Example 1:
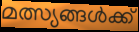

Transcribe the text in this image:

മത്സ്യങ്ങൾക്ക്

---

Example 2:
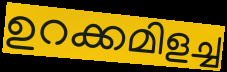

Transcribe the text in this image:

ഉറക്കമിളച്ച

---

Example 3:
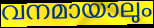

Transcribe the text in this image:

വനമായാലും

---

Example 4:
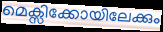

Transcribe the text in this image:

മെക്സിക്കോയിലേക്കും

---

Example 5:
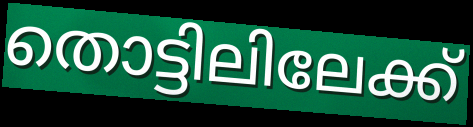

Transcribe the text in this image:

തൊട്ടിലിലേക്ക്